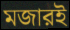
মজারই